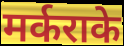
मर्कराके